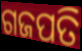
ଗଜପତି